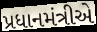
પ્રધાનમંત્રીએ